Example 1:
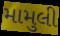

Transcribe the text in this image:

મામુલી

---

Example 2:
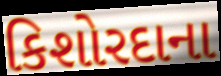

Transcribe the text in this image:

કિશોરદાના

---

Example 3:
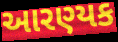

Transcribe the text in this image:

આરણ્યક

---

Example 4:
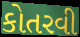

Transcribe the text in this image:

કોતરવી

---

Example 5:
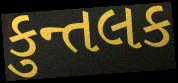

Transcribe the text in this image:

કુન્તલક